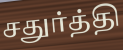
சதுர்த்தி